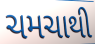
ચમચાથી